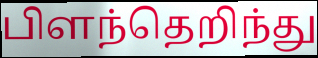
பிளந்தெறிந்து